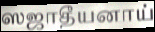
ஸஜாதீயனாய்